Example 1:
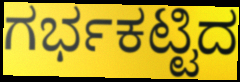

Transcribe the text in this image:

ಗರ್ಭಕಟ್ಟಿದ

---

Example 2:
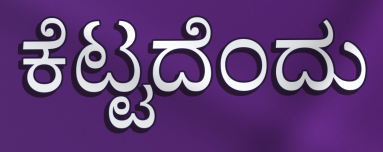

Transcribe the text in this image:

ಕೆಟ್ಟದೆಂದು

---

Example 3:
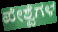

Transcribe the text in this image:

ಪೇಶ್ವೆಗಳ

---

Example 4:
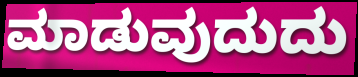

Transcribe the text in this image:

ಮಾಡುವುದುದು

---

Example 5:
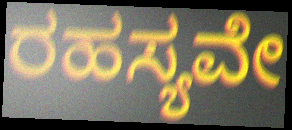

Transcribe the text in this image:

ರಹಸ್ಯವೇ